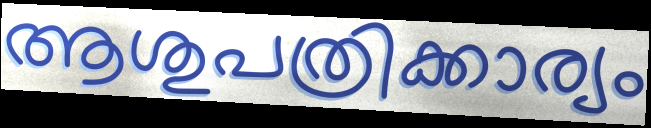
ആശുപത്രിക്കാര്യം